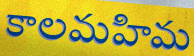
కాలమహిమ